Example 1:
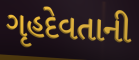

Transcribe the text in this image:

ગૃહદેવતાની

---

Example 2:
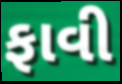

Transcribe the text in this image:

ફાવી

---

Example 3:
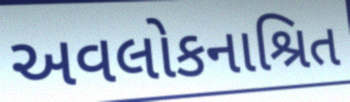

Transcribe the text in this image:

અવલોકનાશ્રિત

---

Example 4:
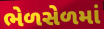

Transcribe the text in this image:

ભેળસેળમાં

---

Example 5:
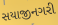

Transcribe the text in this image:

સયાજીનગરી